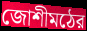
জোশীমঠের